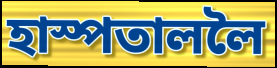
হাস্পতাললৈ